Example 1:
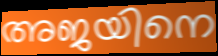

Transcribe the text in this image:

അജയിനെ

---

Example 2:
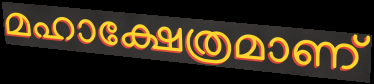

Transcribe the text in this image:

മഹാക്ഷേത്രമാണ്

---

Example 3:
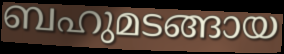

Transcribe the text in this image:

ബഹുമടങ്ങായ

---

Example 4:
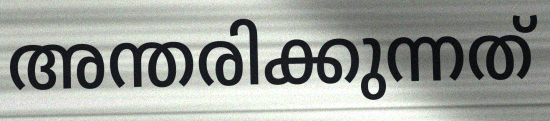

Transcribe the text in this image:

അന്തരിക്കുന്നത്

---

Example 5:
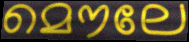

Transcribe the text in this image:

മൌലേ